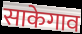
साकेगाव